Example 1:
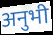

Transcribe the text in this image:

अनुभी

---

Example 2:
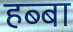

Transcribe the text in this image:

हब्‍बा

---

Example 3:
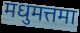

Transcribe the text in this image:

मधुमत्तमा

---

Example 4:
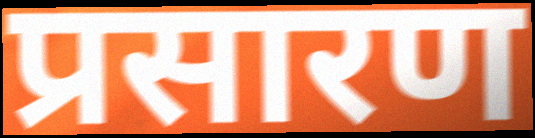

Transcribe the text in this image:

प्रसारण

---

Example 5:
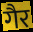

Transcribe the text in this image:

गैर